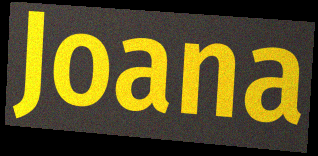
Joana